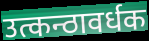
उत्कन्ठावर्धक